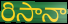
రిసానా